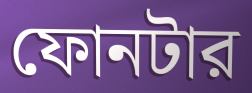
ফোনটার